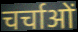
चर्चाओं